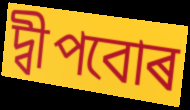
দ্বীপবোৰ